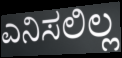
ಎನಿಸಲಿಲ್ಲ